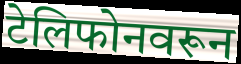
टेलिफोनवरून